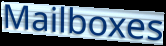
Mailboxes